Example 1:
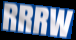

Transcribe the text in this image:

RRRW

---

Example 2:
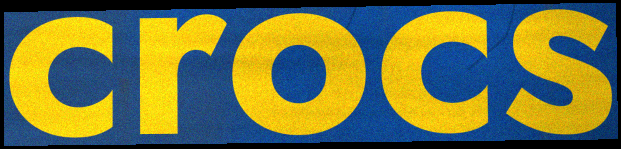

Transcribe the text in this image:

crocs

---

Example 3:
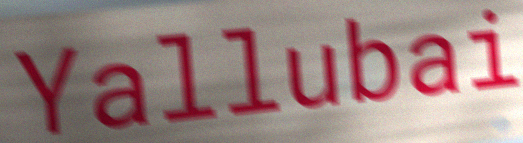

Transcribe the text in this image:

Yallubai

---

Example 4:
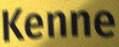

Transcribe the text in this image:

Kenne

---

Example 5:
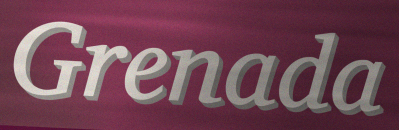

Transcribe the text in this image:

Grenada